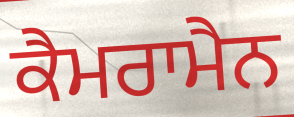
ਕੈਮਰਾਮੈਨ